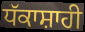
ਧੱਕਾਸ਼ਾਹੀ